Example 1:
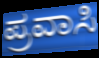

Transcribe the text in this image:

ಪ್ರವಾಸಿ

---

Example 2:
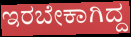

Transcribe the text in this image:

ಇರಬೇಕಾಗಿದ್ದ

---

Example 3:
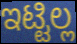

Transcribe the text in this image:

ಇಟ್ಟಿಲ್ಲ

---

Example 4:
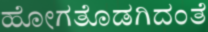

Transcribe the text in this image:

ಹೋಗತೊಡಗಿದಂತೆ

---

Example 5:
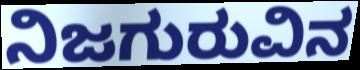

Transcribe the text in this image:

ನಿಜಗುರುವಿನ